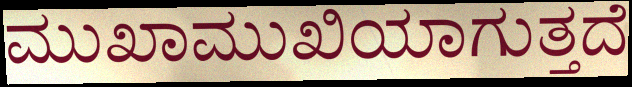
ಮುಖಾಮುಖಿಯಾಗುತ್ತದೆ